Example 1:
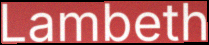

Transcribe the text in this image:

Lambeth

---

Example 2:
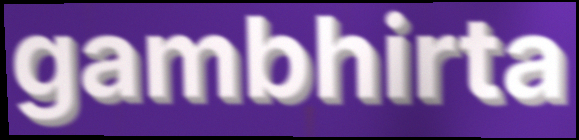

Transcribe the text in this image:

gambhirta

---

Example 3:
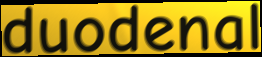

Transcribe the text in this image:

duodenal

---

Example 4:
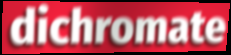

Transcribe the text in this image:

dichromate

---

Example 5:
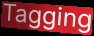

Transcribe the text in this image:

Tagging